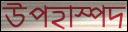
উপহাস্পদ